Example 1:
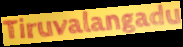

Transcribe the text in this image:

Tiruvalangadu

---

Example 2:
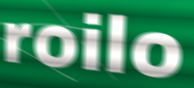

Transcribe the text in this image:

roilo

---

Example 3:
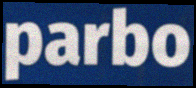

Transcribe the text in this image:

parbo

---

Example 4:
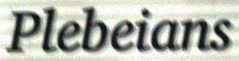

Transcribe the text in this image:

Plebeians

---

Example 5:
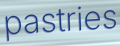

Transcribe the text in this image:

pastries